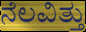
ನೆಲವಿತ್ತು